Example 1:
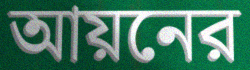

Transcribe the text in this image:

আয়নের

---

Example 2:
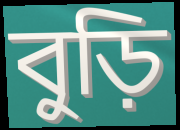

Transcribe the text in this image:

বুড়ি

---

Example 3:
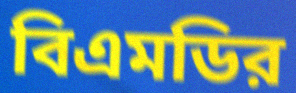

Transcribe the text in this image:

বিএমডির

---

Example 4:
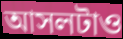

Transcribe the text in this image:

আসলটাও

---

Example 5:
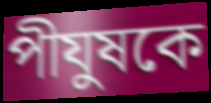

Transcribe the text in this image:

পীযুষকে